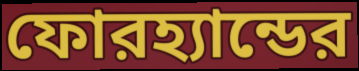
ফোরহ্যান্ডের